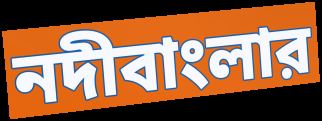
নদীবাংলার